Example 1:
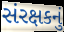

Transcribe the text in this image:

સંરક્ષકનું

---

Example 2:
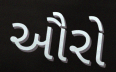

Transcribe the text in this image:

ઔરો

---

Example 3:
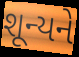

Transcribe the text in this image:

શૂન્યને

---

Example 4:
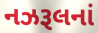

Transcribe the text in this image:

નઝરૂલનાં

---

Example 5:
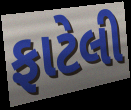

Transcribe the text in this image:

ફાટેલી